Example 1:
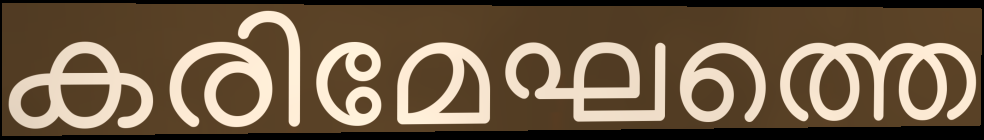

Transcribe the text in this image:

കരിമേഘത്തെ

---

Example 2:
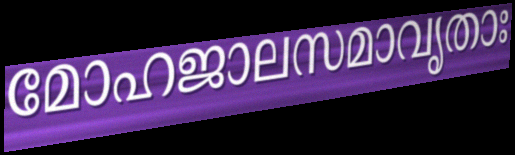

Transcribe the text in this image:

മോഹജാലസമാവൃതാഃ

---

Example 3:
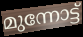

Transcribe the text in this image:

മുന്നോട്ട്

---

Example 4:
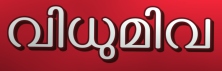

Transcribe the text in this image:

വിധുമിവ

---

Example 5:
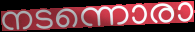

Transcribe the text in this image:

നടന്നൊരാ